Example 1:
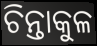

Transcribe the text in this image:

ଚିନ୍ତାକୁଳ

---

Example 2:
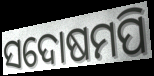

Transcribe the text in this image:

ସଦୋଷମପି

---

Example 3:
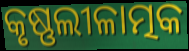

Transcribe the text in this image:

କୃଷ୍ଣଲୀଳାତ୍ମକ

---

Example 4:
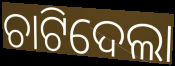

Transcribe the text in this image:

ଚାଟିଦେଲା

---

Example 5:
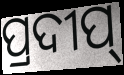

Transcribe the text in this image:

ପ୍ରଦୀପ୍